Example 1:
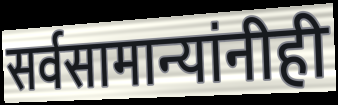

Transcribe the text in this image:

सर्वसामान्यांनीही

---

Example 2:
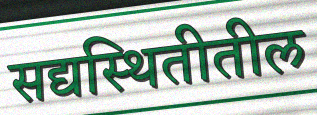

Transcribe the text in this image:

सद्यस्थितीतील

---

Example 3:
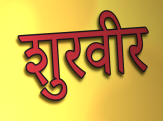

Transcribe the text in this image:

शुरवीर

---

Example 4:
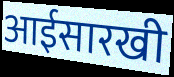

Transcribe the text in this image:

आईसारखी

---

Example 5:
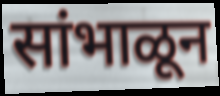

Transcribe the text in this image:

सांभाळून